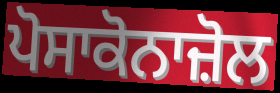
ਪੋਸਾਕੋਨਾਜ਼ੋਲ